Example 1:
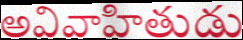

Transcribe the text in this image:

అవివాహితుడు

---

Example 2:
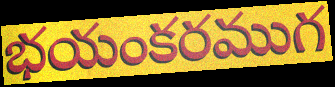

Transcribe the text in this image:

భయంకరముగ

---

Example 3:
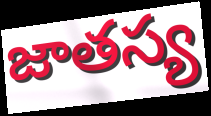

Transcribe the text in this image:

జాతస్య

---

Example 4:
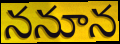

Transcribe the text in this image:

ననూన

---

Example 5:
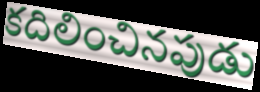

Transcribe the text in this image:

కదిలించినపుడు